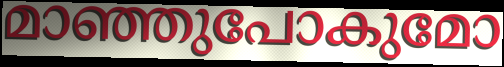
മാഞ്ഞുപോകുമോ